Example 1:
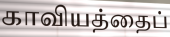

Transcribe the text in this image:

காவியத்தைப்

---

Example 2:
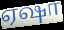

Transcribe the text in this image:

ஏஷா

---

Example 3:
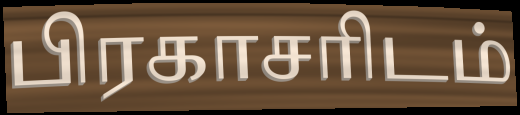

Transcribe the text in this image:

பிரகாசரிடம்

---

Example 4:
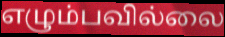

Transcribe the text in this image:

எழும்பவில்லை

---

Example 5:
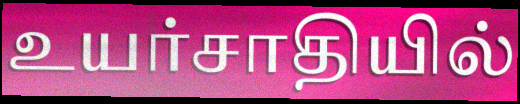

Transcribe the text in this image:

உயர்சாதியில்